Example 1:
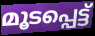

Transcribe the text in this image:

മൂടപ്പെട്ട്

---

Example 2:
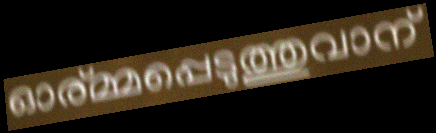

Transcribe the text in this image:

ഓര്മ്മപ്പെടുത്തുവാന്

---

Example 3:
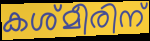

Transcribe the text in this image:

കശ്മീരിന്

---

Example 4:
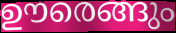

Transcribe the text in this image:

ഊരെങ്ങും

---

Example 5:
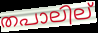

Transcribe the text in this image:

തപാലില്